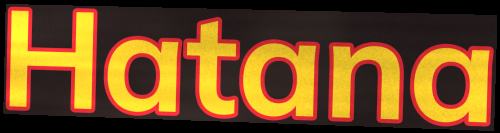
Hatana